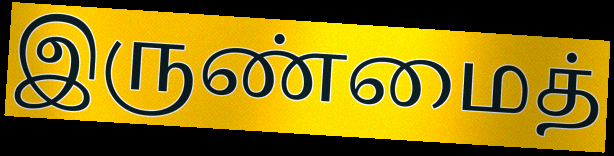
இருண்மைத்